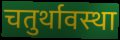
चतुर्थावस्था